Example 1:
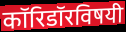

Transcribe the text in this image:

कॉरिडॉरविषयी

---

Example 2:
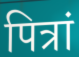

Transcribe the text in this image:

पित्रां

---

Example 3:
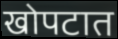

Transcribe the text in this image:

खोपटात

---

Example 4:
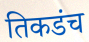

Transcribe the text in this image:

तिकडंच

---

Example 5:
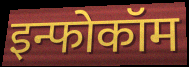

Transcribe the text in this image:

इन्फोकॉम